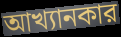
আখ্যানকার